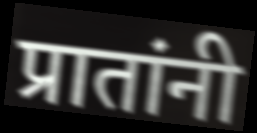
प्रातांनी